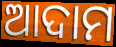
ଆଦାମ